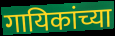
गायिकांच्या